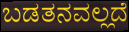
ಬಡತನವಲ್ಲದೆ